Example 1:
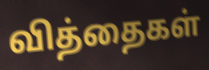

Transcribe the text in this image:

வித்தைகள்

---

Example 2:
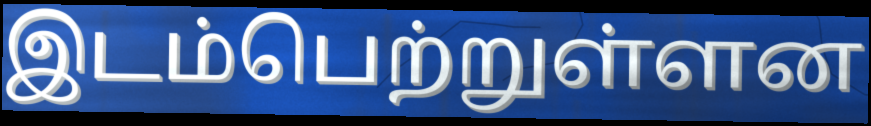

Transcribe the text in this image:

இடம்பெற்றுள்ளன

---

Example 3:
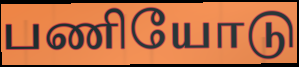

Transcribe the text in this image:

பணியோடு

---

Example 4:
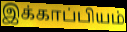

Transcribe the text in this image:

இக்காப்பியம்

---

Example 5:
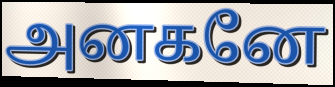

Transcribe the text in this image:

அனகனே